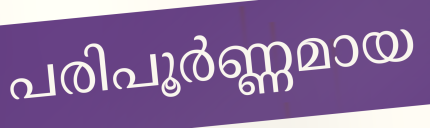
പരിപൂർണ്ണമായ